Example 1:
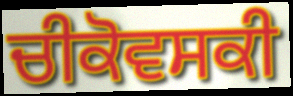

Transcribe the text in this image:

ਚੀਕੋਵਸਕੀ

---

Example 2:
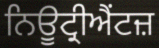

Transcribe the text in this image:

ਨਿਊਟ੍ਰੀਐਂਟਜ਼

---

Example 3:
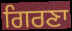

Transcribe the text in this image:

ਗਿਰਣਾ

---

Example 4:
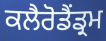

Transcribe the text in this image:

ਕਲੈਰੋਡੈਂਡ੍ਰਮ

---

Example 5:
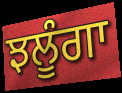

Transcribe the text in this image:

ਝਲੂੰਗਾ